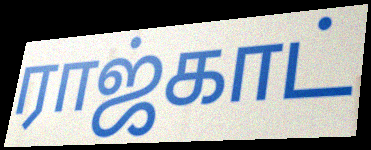
ராஜ்காட்